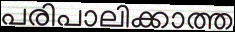
പരിപാലിക്കാത്ത